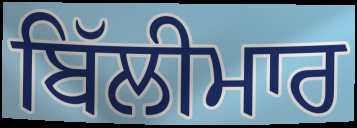
ਬਿੱਲੀਮਾਰ